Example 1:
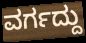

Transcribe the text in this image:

ವರ್ಗದ್ದು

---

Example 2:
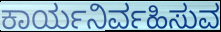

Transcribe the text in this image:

ಕಾರ್ಯನಿರ್ವಹಿಸುವ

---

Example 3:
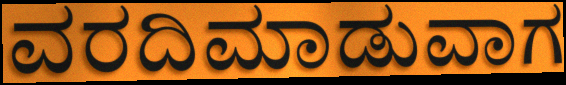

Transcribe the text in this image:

ವರದಿಮಾಡುವಾಗ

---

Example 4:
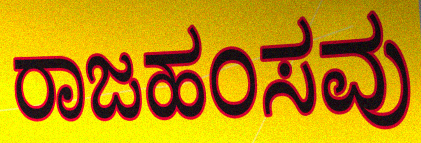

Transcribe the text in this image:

ರಾಜಹಂಸವು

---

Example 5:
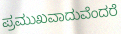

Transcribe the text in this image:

ಪ್ರಮುಖವಾದುವೆಂದರೆ